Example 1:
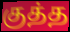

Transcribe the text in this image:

குத்த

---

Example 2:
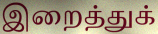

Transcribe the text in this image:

இறைத்துக்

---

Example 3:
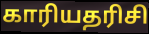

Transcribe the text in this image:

காரியதரிசி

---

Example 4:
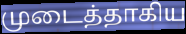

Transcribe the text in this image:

முடைத்தாகிய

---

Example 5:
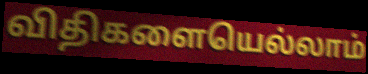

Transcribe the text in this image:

விதிகளையெல்லாம்